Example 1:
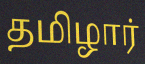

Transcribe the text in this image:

தமிழார்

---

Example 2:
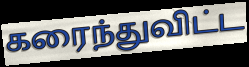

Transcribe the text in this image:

கரைந்துவிட்ட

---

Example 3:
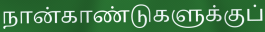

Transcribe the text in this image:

நான்காண்டுகளுக்குப்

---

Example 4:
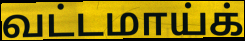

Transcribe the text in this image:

வட்டமாய்க்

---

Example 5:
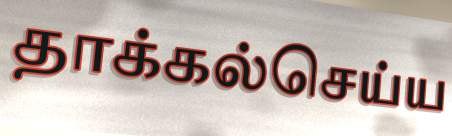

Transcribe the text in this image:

தாக்கல்செய்ய